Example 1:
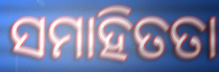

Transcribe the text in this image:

ସମାହିତତା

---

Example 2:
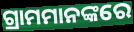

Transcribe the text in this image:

ଗ୍ରାମମାନଙ୍କରେ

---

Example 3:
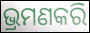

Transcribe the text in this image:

ଭ୍ରମଣକରି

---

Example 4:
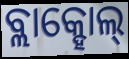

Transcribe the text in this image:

ବ୍ଲାକ୍ହୋଲ୍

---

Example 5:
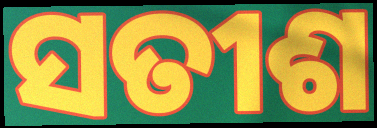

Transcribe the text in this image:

ସତୀଶ